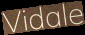
Vidale